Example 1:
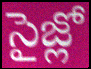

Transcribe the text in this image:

సైజ్లో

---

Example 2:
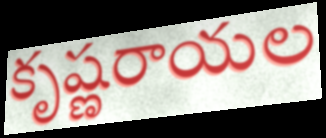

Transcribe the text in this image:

కృష్ణరాయల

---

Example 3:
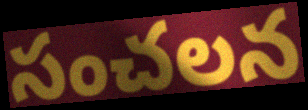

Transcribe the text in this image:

సంచలన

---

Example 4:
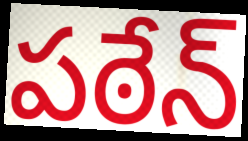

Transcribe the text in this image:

పఠేన్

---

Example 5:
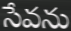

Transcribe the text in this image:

సేవను